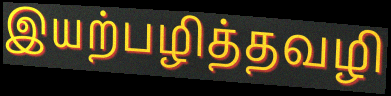
இயற்பழித்தவழி